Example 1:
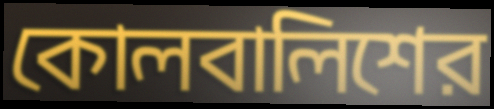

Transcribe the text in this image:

কোলবালিশের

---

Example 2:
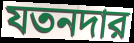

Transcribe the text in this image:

যতনদার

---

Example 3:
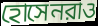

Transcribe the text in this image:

হোসেনরাও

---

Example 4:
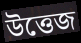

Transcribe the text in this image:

উত্তেজ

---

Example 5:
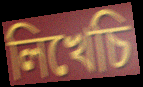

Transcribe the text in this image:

লিখেচি